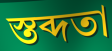
স্তব্দতা